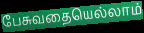
பேசுவதையெல்லாம்